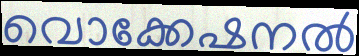
വൊക്കേഷനൽ